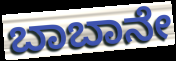
ಬಾಬಾನೇ